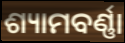
ଶ୍ୟାମବର୍ଣ୍ଣା